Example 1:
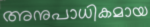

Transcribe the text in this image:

അനുപാധികമായ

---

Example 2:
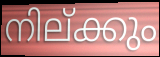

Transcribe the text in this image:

നില്ക്കും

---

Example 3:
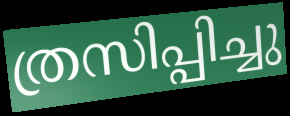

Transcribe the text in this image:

ത്രസിപ്പിച്ചു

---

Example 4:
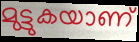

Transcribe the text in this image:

മുട്ടുകയാണ്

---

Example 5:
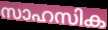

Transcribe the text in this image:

സാഹസിക